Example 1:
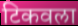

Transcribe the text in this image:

टिकवला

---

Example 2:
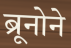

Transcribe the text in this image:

ब्रूनोने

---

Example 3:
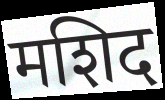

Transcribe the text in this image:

मशिद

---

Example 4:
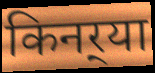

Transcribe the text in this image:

किनर्या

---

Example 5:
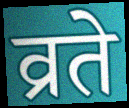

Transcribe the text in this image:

व्रते